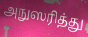
அநுஸரித்து